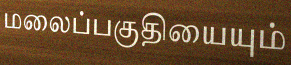
மலைப்பகுதியையும்